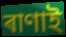
ৰাণাই